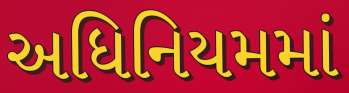
અધિનિયમમાં